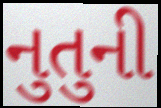
નુતુની